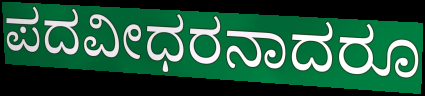
ಪದವೀಧರನಾದರೂ